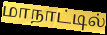
மாநாட்டில்